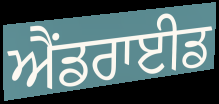
ਐਂਡਰਾਈਡ